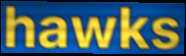
hawks